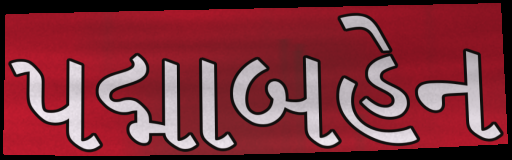
પદ્માબહેન